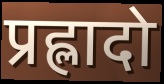
प्रह्लादो